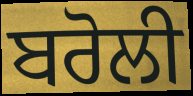
ਬਰੋਲੀ